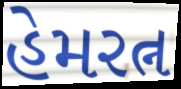
હેમરત્ન